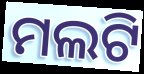
ମଲଟି